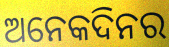
ଅନେକଦିନର